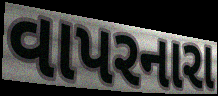
વાપરનારા